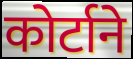
कोर्टाने